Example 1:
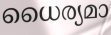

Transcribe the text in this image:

ധൈര്യമാ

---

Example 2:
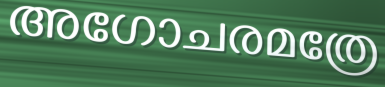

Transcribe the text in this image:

അഗോചരമത്രേ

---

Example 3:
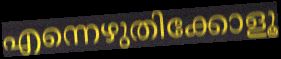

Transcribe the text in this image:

എന്നെഴുതിക്കോളൂ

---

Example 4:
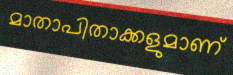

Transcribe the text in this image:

മാതാപിതാക്കളുമാണ്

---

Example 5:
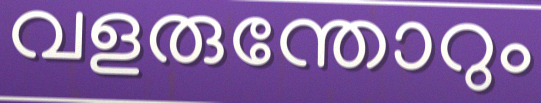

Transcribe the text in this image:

വളരുന്തോറും